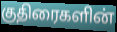
குதிரைகளின்